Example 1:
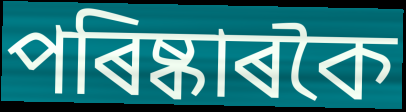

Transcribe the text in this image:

পৰিষ্কাৰকৈ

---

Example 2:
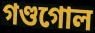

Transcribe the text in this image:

গণ্ডগোল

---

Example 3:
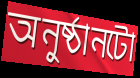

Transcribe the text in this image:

অনুষ্ঠানটো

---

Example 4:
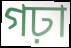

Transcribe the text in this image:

গঢ়া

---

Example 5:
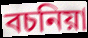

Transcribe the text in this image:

বচনিয়া